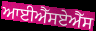
ਆਈਐੱਸਏਐੱਸ